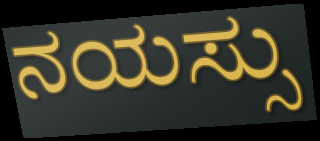
ನಯಸ್ಸು